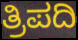
ತ್ರಿಪದಿ